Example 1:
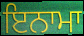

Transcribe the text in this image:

ਇਨਾਮਾ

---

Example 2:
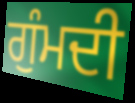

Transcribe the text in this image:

ਗੁੰਮਦੀ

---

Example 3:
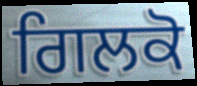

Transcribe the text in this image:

ਗਿਲਕੋ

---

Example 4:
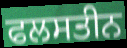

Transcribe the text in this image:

ਫਲਸਤੀਨ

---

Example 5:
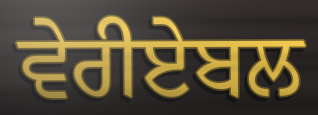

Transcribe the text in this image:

ਵੇਰੀਏਬਲ